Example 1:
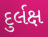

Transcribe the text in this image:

દુર્લક્ષ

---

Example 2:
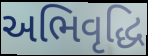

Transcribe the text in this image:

અભિવૃદ્ધિ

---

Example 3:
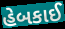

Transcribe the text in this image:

હેબકાઈ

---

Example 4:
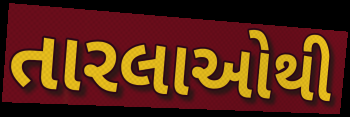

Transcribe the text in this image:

તારલાઓથી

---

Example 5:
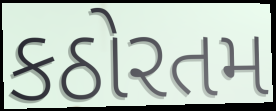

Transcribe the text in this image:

કઠોરતમ